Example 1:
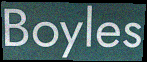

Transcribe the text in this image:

Boyles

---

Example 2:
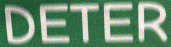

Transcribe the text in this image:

DETER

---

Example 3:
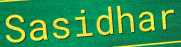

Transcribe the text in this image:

Sasidhar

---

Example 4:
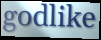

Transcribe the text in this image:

godlike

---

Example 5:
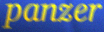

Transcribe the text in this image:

panzer